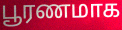
பூரணமாக